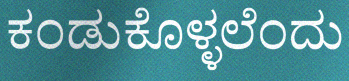
ಕಂಡುಕೊಳ್ಳಲೆಂದು